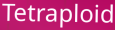
Tetraploid